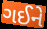
ગઈને